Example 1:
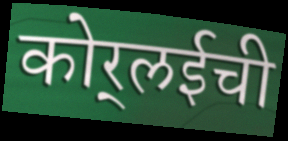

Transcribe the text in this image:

कोर्लईची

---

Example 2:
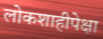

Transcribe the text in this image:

लोकशाहीपेक्षा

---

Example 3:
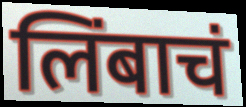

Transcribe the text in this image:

लिंबाचं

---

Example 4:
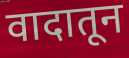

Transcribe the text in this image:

वादातून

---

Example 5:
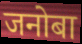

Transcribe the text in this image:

जनोबा